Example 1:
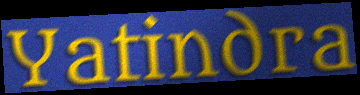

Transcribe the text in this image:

Yatindra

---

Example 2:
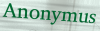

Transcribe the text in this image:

Anonymus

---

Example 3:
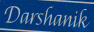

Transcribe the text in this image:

Darshanik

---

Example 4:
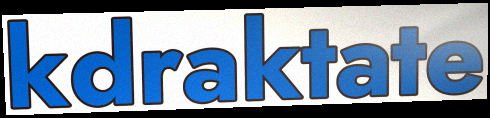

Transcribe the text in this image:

kdraktate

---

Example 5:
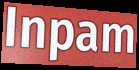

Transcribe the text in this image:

Inpam